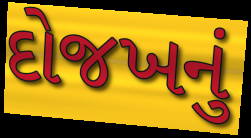
દોજખનું